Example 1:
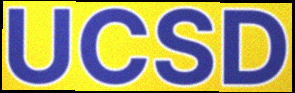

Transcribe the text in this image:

UCSD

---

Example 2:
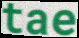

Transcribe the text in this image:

tae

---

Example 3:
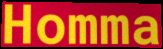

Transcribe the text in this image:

Homma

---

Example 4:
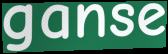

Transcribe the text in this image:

ganse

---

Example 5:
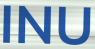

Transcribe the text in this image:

INU